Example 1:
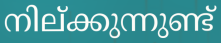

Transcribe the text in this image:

നില്ക്കുന്നുണ്ട്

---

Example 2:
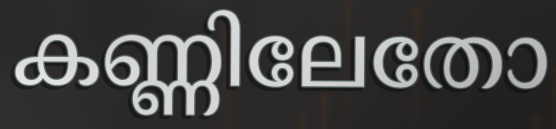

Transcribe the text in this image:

കണ്ണിലേതോ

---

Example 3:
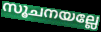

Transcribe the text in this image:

സൂചനയല്ലേ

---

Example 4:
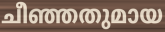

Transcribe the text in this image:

ചീഞ്ഞതുമായ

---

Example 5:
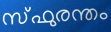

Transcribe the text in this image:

സ്ഫുരന്തം